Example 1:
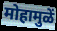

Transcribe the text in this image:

मोहामुळें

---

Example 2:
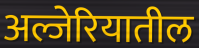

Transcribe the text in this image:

अल्जेरियातील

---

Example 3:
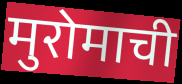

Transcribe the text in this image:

मुरोमाची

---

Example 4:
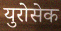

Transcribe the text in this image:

युरोसेक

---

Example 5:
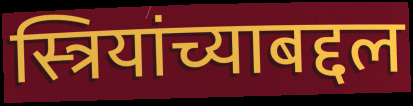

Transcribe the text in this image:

स्त्रियांच्याबद्दल